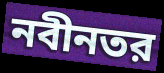
নবীনতর